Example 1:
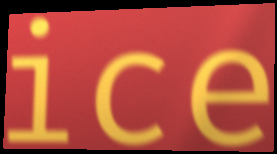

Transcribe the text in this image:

ice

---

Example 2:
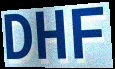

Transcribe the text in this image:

DHF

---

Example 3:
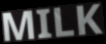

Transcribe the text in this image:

MILK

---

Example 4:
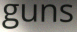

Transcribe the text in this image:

guns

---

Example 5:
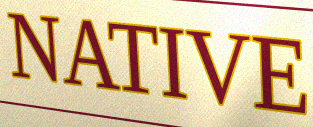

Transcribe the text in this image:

NATIVE